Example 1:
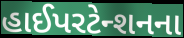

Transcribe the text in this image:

હાઈપરટેન્શનના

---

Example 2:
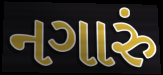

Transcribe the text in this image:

નગારું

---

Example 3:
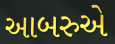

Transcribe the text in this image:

આબરુએ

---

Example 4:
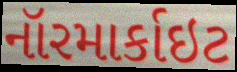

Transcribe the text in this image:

નૉરમાર્કાઇટ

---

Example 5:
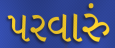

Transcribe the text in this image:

પરવારું